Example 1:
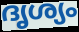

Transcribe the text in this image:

ദൃശ്യം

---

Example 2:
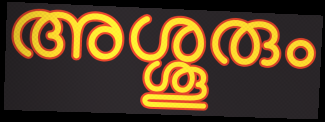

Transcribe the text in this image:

അശ്ശൂരും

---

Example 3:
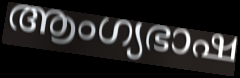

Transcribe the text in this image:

ആംഗ്യഭാഷ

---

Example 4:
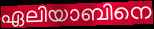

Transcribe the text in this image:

ഏലിയാബിനെ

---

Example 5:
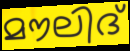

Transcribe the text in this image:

മൗലിദ്